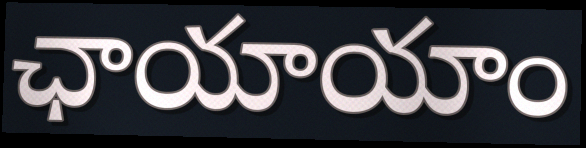
ఛాయాయాం